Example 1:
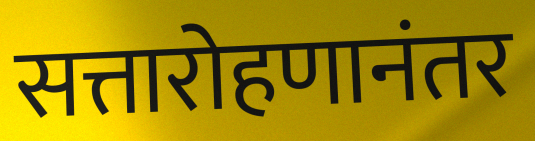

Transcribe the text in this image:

सत्तारोहणानंतर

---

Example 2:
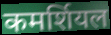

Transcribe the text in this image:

कमर्शियल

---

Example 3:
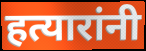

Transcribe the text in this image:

हत्यारांनी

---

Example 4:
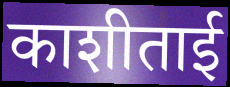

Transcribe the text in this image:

काशीताई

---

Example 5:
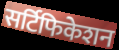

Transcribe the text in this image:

सर्टिफिकेशन